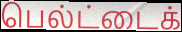
பெல்ட்டைக்